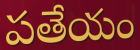
పతేయం